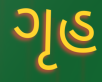
ગૃહ